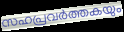
സഹപ്രവർത്തകയും